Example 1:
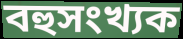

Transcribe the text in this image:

বহুসংখ্যক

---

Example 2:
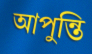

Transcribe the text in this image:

আপুন্তি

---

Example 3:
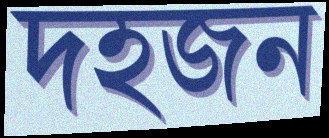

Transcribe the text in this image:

দহজন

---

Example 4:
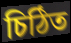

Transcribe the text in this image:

চিঠিত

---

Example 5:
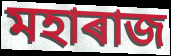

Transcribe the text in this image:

মহাৰাজ